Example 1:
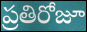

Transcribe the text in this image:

ప్రతిరోజూ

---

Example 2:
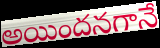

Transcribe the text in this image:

అయిందనగానే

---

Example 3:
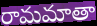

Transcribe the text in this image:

రామమాతా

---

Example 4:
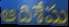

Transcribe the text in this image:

ఆదిశేషు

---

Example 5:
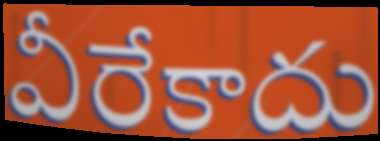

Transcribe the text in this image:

వీరేకాదు